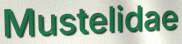
Mustelidae